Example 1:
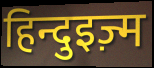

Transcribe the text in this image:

हिन्दुइज़्म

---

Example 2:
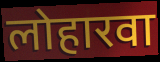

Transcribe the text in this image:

लोहारवा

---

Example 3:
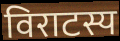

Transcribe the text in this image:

विराटस्य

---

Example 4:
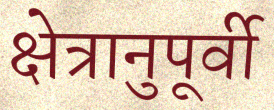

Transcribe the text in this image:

क्षेत्रानुपूर्वी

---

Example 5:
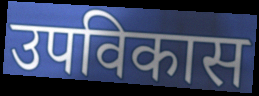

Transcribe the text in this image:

उपविकास